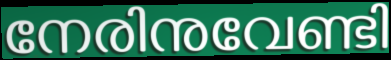
നേരിനുവേണ്ടി